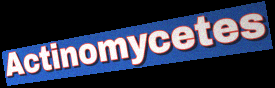
Actinomycetes